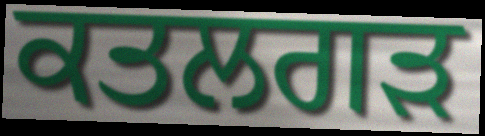
ਕਤਲਗੜ